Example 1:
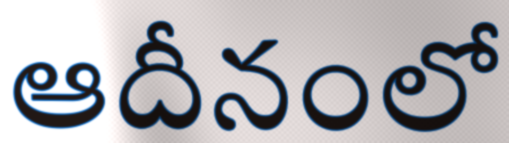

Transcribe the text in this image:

ఆదీనంలో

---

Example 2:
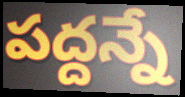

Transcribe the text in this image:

పద్దన్నే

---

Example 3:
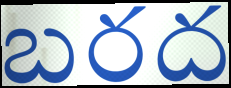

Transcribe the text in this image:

బరద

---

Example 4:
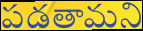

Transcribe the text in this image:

పడతామని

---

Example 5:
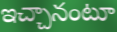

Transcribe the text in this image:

ఇచ్చానంటూ